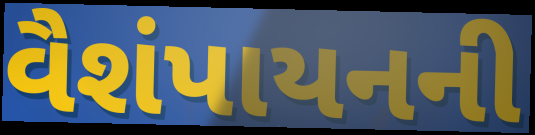
વૈશંપાયનની